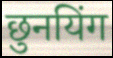
छुनयिंग